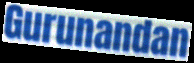
Gurunandan